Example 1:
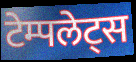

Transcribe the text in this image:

टेम्पलेट्स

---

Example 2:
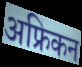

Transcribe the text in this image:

अफ्रिकन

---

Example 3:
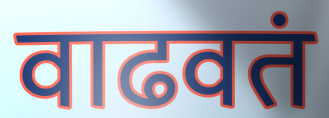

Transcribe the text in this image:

वाढवतं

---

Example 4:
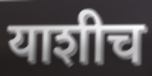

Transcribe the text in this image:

याशीच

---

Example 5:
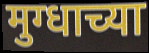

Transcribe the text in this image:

मुग्धाच्या